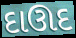
દાઊદ